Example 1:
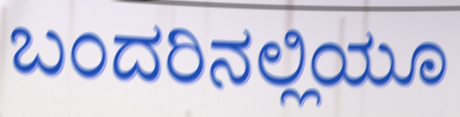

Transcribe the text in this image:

ಬಂದರಿನಲ್ಲಿಯೂ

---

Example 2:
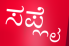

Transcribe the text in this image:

ಸಪ್ಲೈ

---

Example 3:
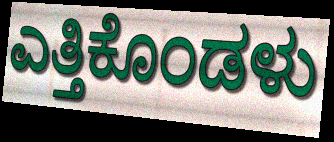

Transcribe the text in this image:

ಎತ್ತಿಕೊಂಡಳು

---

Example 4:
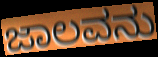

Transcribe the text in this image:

ಜಾಲವನು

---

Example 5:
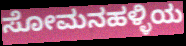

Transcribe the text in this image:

ಸೋಮನಹಳ್ಳಿಯ